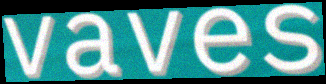
vaves